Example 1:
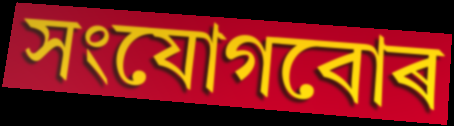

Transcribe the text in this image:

সংযোগবোৰ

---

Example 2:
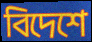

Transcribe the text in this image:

বিদেশে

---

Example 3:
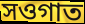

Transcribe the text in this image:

সওগাত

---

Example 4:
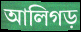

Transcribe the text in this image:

আলিগড়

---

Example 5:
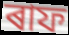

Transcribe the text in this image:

ৰাফ